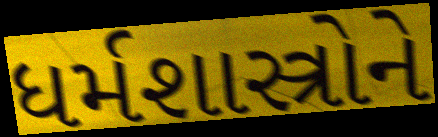
ધર્મશાસ્ત્રોને